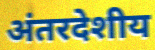
अंतरदेशीय